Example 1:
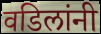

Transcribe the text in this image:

वडिलांनी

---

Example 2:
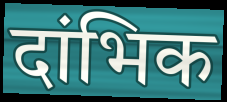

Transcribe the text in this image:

दांभिक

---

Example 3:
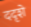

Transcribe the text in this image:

ददृशे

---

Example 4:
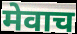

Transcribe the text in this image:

मेवाच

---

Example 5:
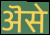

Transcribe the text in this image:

ऄसे